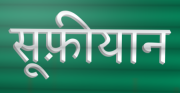
सूफ़ीयान